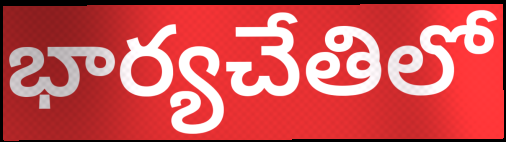
భార్యచేతిలో